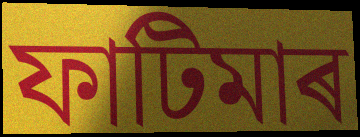
ফাটিমাৰ